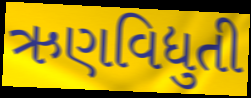
ઋણવિદ્યુતી